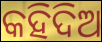
କହିଦିଅ